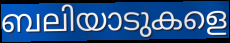
ബലിയാടുകളെ